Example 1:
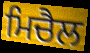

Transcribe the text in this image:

ਮਿਚੈਲ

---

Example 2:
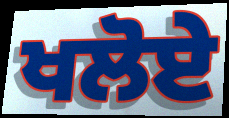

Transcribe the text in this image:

ਖਲੋਏ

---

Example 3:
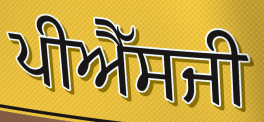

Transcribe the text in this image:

ਪੀਐੱਸਜੀ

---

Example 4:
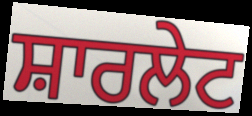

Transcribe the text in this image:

ਸ਼ਾਰਲੇਟ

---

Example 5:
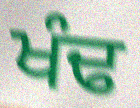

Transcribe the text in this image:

ਖੰਢ